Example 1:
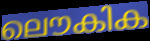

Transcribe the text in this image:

ലൌകിക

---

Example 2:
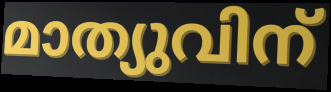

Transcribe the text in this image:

മാത്യുവിന്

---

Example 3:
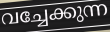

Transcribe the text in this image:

വച്ചേക്കുന്ന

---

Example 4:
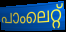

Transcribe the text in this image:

പാംലെറ്റ്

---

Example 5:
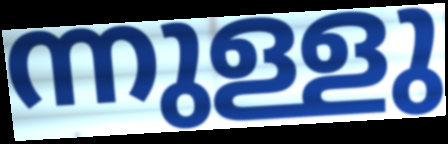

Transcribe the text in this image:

ന്നുള്ളു